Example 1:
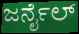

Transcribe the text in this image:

ಜರ್ನೈಲ್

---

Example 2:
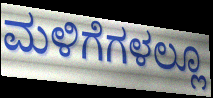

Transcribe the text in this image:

ಮಳಿಗೆಗಳಲ್ಲೂ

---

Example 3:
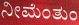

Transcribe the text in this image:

ನೀಮೆಂತುಂ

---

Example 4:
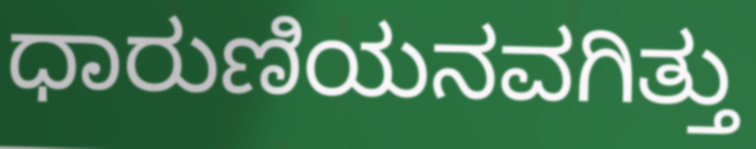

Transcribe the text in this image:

ಧಾರುಣಿಯನವಗಿತ್ತು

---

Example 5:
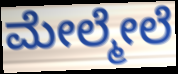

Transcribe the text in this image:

ಮೇಲ್ಮೇಲೆ